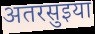
अतरसुइया